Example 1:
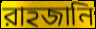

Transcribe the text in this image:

রাহজানি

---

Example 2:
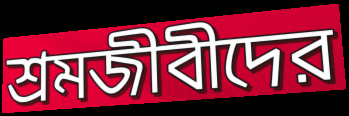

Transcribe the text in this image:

শ্রমজীবীদের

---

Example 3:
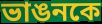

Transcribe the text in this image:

ভাঙনকে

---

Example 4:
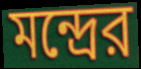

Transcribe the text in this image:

মন্দ্রের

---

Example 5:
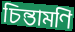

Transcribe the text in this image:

চিন্তামণি